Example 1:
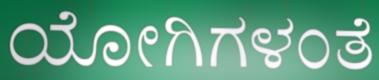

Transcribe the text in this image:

ಯೋಗಿಗಳಂತೆ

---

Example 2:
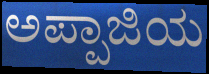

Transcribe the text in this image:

ಅಪ್ಪಾಜಿಯ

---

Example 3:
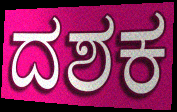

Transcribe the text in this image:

ದಶಕ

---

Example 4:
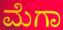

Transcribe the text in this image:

ಮೆಗಾ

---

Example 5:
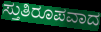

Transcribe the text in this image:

ಸ್ತುತಿರೂಪವಾದ